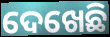
ଦେଖେଛି